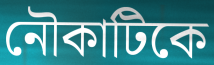
নৌকাটিকে